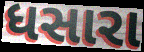
ધસારા